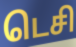
டெசி